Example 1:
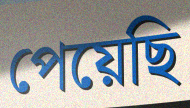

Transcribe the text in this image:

পেয়েছি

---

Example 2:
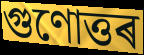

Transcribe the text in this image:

গুণোত্তৰ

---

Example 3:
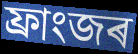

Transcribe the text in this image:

ফ্ৰাংজৰ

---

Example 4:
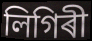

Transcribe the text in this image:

লিগিৰী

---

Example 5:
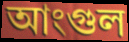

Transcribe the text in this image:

আংগুল